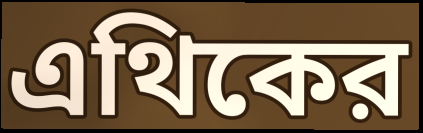
এথিকের